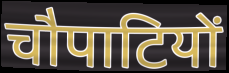
चौपाटियों